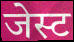
जेस्‍ट